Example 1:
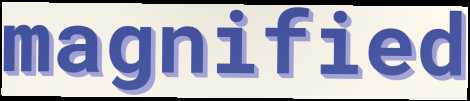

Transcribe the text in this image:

magnified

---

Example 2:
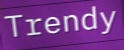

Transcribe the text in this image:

Trendy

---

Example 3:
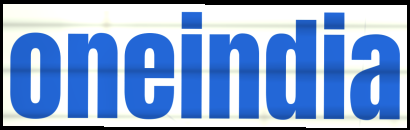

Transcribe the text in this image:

oneindia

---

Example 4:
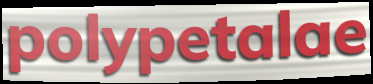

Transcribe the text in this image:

polypetalae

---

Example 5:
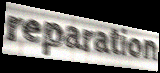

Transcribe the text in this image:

reparation